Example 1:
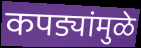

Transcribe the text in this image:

कपड्यांमुळे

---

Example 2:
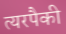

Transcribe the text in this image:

त्यरपैकी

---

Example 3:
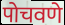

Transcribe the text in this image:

पोचवणे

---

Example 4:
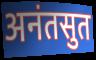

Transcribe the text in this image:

अनंतसुत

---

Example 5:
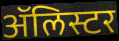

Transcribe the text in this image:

ॲलिस्टर